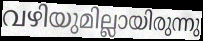
വഴിയുമില്ലായിരുന്നു